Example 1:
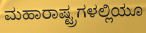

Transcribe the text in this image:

ಮಹಾರಾಷ್ಟ್ರಗಳಲ್ಲಿಯೂ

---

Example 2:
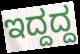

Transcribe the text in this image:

ಇದ್ದದ್ದ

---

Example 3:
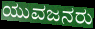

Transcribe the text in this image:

ಯುವಜನರು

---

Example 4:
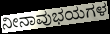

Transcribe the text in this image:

ನೀನಾವುಭಯಗಳ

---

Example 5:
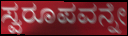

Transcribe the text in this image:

ಸ್ವರೂಪವನ್ನೇ